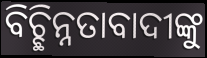
ବିଚ୍ଛିନ୍ନତାବାଦୀଙ୍କୁ